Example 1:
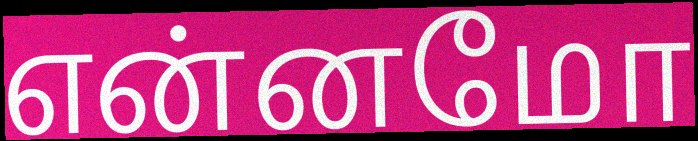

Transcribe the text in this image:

என்னமோ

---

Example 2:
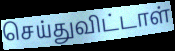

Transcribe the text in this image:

செய்துவிட்டாள்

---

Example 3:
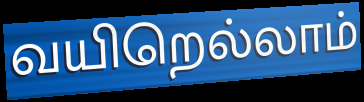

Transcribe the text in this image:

வயிறெல்லாம்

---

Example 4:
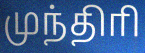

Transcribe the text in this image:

முந்திரி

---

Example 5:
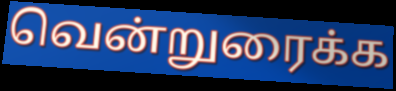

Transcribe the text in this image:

வென்றுரைக்க